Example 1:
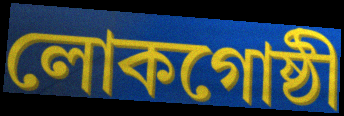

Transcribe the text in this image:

লোকগোষ্ঠী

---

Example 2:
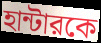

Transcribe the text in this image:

হান্টারকে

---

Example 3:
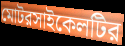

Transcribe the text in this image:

মোটরসাইকেলটির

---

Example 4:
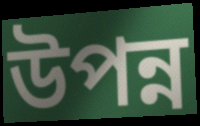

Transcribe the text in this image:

উপন্ন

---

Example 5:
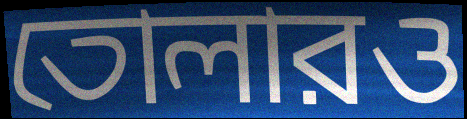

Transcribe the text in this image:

তোলারও